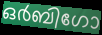
ഒർബിഗോ